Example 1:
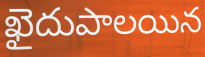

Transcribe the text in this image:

ఖైదుపాలయిన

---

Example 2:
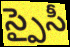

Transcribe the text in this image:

స్పైసీ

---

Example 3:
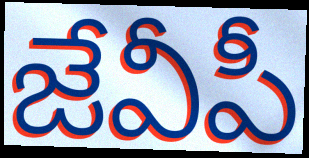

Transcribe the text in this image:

జేవీపీ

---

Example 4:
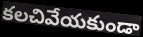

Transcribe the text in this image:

కలచివేయకుండా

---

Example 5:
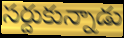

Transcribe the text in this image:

సర్దుకున్నాడు